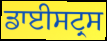
ਡਾਈਸਟ੍ਰਸ